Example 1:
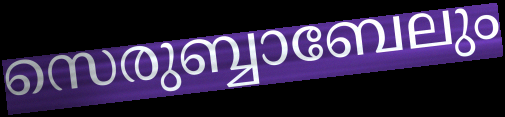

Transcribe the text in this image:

സെരുബ്ബാബേലും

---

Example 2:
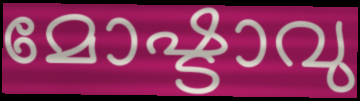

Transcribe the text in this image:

മോഷ്ടാവു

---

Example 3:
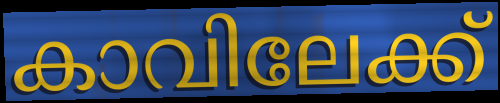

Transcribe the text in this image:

കാവിലേക്ക്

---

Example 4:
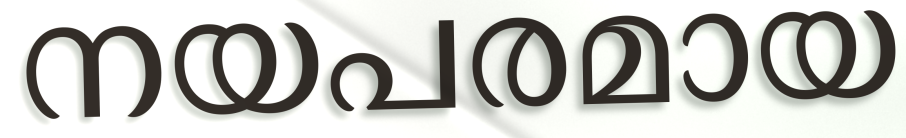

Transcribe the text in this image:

നയപരമായ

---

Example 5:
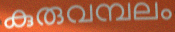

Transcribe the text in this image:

കുരുവമ്പലം